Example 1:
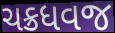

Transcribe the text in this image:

ચક્રધવજ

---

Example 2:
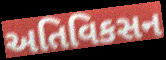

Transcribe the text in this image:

અતિવિકસન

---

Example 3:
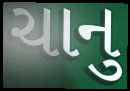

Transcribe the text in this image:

ચાનુ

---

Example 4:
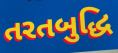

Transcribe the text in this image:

તરતબુદ્ધિ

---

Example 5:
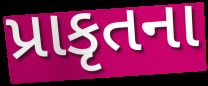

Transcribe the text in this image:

પ્રાકૃતના